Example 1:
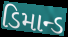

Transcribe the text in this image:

ડિમાન્ડ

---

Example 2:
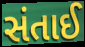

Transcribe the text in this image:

સંતાઈ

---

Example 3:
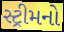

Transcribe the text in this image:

સ્ટ્રીમનો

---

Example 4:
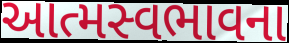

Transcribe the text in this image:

આત્મસ્વભાવના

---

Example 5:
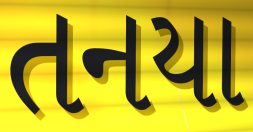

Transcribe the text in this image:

તનયા